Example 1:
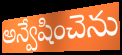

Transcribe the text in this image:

అన్వేషించెను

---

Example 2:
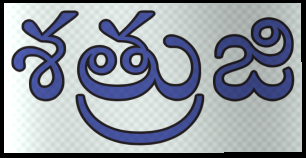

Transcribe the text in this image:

శత్రుజి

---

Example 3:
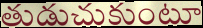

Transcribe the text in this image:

తుడుచుకుంటూ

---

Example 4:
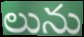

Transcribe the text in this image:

లును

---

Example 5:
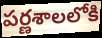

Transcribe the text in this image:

పర్ణశాలలోకి